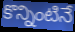
కొన్నింటినే